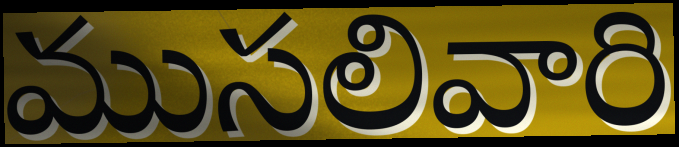
ముసలివారి